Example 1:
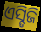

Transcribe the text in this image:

ଏସ୍ଡିଜି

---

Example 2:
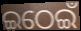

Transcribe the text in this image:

ଇଠେଇଁ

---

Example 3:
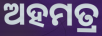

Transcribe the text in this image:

ଅହମତ୍ର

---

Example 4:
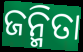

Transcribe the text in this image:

ଜନ୍ମିତା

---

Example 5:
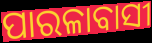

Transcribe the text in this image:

ପାରଳାବାସୀ